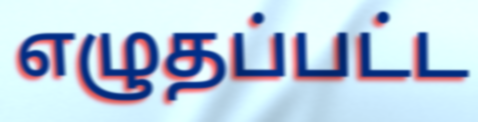
எழுதப்பட்ட